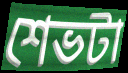
শেভটা